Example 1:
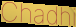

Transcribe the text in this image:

Chadhi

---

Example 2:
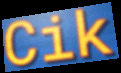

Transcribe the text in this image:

Cik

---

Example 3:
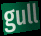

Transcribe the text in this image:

gull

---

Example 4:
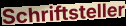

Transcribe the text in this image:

Schriftsteller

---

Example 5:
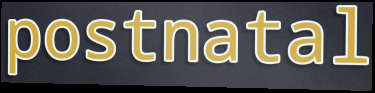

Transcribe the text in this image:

postnatal